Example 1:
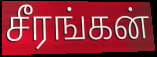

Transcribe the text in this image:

சீரங்கன்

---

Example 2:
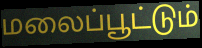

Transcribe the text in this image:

மலைப்பூட்டும்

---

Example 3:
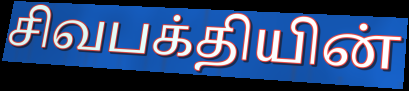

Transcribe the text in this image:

சிவபக்தியின்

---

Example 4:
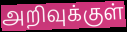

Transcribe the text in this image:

அறிவுக்குள்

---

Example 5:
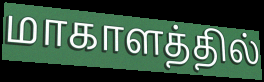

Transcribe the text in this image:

மாகாளத்தில்